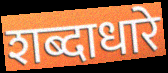
शब्दाधारे